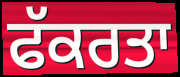
ਫੱਕਰਤਾ